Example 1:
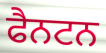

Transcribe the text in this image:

ਫੈਨਟਨ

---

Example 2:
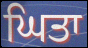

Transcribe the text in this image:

ਘਿਤਾ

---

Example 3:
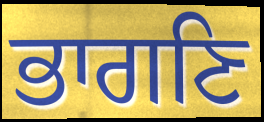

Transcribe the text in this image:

ਭਾਗਣਿ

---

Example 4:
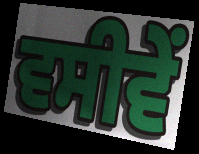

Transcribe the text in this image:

ਵਸੀਵੇਂ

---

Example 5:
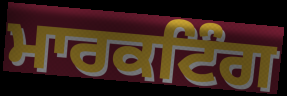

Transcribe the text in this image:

ਮਾਰਕਟਿੰਗ